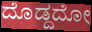
ದೊಡ್ದದೋ